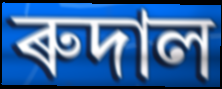
ৰুদাল